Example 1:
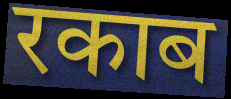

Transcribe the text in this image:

रकाब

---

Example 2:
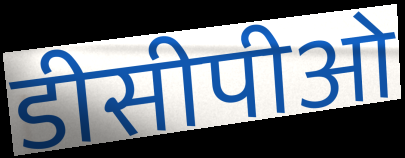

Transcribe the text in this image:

डीसीपीओ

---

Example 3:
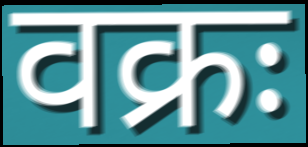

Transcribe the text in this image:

वक्रः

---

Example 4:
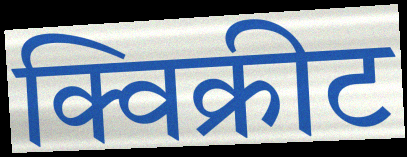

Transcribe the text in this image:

क्विक्रीट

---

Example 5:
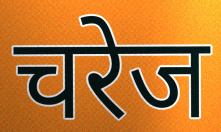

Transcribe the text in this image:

चरेज